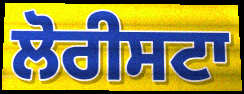
ਲੋਰੀਸਟਾ